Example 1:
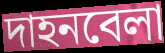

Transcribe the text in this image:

দাহনবেলা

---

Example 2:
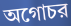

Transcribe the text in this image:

অগোচর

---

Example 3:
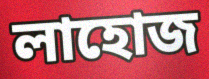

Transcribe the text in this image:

লাহোজ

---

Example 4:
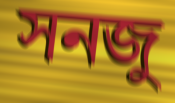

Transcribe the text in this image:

সনজু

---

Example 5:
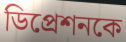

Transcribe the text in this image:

ডিপ্রেশনকে